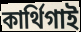
কার্থিগাই